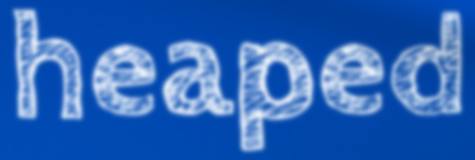
heaped